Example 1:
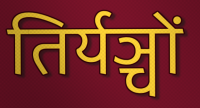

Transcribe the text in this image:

तिर्यञ्चों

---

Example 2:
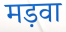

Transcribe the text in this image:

मड़वा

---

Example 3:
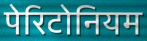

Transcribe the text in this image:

पेरिटोनियम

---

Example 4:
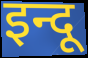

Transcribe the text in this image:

इन्दू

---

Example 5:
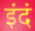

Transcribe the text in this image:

इंदं